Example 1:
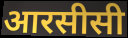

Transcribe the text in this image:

आरसीसी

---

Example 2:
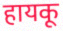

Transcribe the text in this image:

हायकू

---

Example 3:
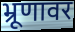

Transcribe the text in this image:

भ्रूणावर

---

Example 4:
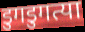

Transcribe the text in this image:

डुगडुगत्या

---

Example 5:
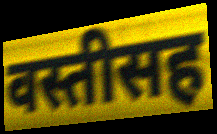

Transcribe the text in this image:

वस्तीसह